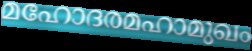
മഹോദരമഹാമുഖം